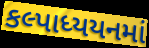
કલ્પાધ્યયનમાં